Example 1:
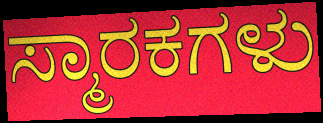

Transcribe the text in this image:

ಸ್ಮಾರಕಗಳು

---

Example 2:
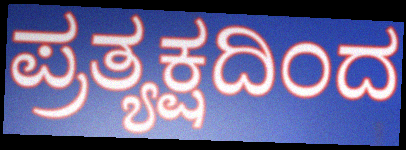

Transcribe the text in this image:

ಪ್ರತ್ಯಕ್ಷದಿಂದ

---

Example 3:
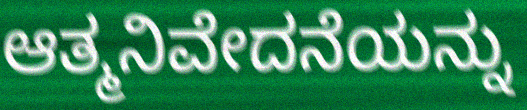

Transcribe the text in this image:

ಆತ್ಮನಿವೇದನೆಯನ್ನು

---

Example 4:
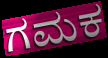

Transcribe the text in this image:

ಗಮಕ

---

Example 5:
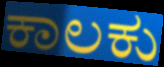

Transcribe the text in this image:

ಕಾಲಕು